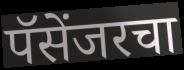
पॅसेंजरचा